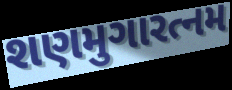
શણમુગારત્નમ